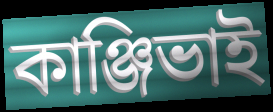
কাঞ্জিভাই